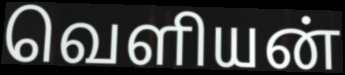
வெளியன்